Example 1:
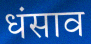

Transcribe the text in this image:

धंसाव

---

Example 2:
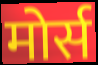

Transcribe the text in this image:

मोर्स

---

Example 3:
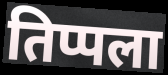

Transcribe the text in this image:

तिप्पला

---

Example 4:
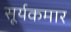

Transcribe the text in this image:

सूर्यकमार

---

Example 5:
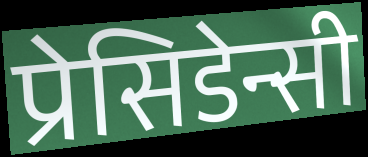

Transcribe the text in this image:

प्रेसिडेन्सी